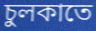
চুলকাতে